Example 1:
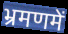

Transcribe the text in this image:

भ्रमणमें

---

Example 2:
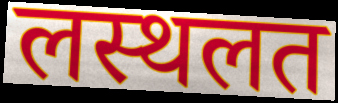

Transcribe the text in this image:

लस्थलत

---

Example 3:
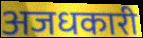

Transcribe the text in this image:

अजधकारी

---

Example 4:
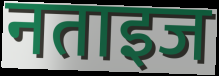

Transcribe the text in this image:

नताइज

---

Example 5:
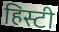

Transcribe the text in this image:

हिस्टी